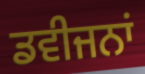
ਡਵੀਜਨਾਂ